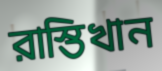
রাস্তিখান